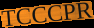
TCCCPR